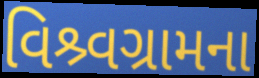
વિશ્ર્વગ્રામના